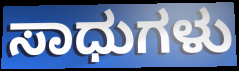
ಸಾಧುಗಳು